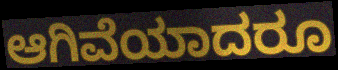
ಆಗಿವೆಯಾದರೂ